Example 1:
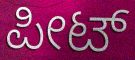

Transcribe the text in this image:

ಪೀಟ್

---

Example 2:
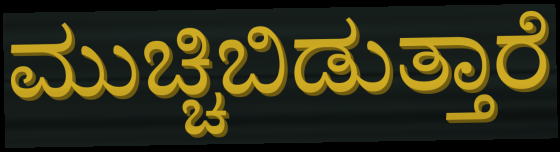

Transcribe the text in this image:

ಮುಚ್ಚಿಬಿಡುತ್ತಾರೆ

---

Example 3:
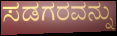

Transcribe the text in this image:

ಸಡಗರವನ್ನು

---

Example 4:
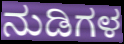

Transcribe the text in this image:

ನುಡಿಗಳ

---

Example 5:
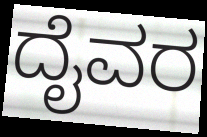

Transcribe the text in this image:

ದೈವರ